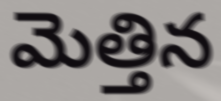
మెత్తిన